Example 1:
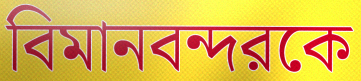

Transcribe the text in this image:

বিমানবন্দরকে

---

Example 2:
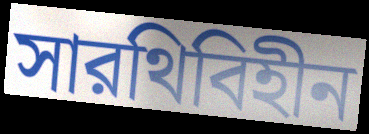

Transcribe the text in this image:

সারথিবিহীন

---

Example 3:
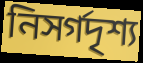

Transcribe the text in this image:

নিসর্গদৃশ্য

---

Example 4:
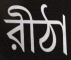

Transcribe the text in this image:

রীঠা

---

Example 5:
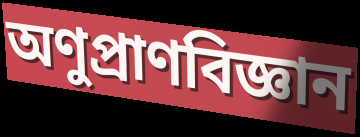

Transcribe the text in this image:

অণুপ্রাণবিজ্ঞান